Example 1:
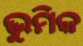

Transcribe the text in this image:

ଭୁମିକ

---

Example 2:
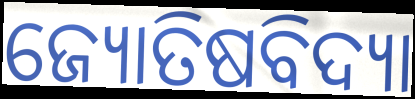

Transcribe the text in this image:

ଜ୍ୟୋତିଷବିଦ୍ୟା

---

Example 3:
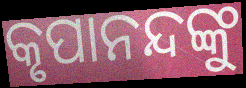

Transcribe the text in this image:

କୃପାନନ୍ଦଙ୍କୁ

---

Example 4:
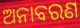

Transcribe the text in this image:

ଅନାବରଣ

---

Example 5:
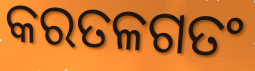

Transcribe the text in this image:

କରତଳଗତଂ